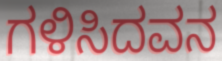
ಗಳಿಸಿದವನ